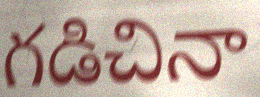
గడిచినా